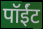
पॉईंट